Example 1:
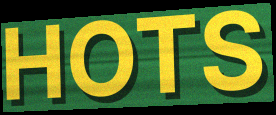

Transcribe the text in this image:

HOTS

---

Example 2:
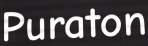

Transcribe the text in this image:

Puraton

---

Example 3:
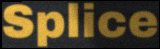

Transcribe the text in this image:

Splice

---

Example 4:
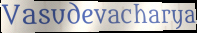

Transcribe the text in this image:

Vasudevacharya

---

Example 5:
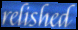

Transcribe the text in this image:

relished